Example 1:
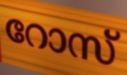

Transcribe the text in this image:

റോസ്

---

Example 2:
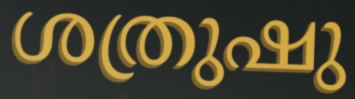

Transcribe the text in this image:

ശത്രുഷു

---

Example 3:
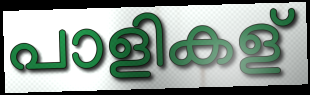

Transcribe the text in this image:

പാളികള്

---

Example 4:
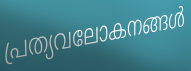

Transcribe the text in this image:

പ്രത്യവലോകനങ്ങൾ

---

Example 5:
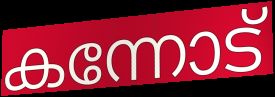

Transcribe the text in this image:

കന്നോട്